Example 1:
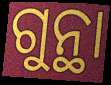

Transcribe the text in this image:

ଗୁନ୍ଥା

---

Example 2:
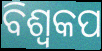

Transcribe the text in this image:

ବିଶ୍ୱକପ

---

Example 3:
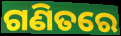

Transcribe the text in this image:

ଗଣିତରେ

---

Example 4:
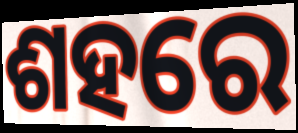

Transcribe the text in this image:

ଶହରେ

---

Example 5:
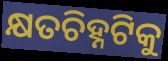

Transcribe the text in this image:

କ୍ଷତଚିହ୍ନଟିକୁ